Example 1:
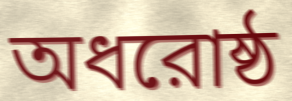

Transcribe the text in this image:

অধরোষ্ঠ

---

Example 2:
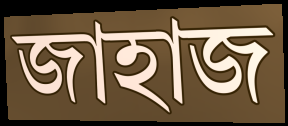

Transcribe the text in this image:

জাহাজ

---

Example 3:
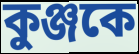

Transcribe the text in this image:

কুঞ্জকে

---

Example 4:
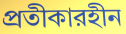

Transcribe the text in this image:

প্রতীকারহীন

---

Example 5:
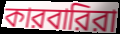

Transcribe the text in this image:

কারবারিরা